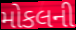
મોકલની